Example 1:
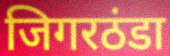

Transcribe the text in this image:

जिगरठंडा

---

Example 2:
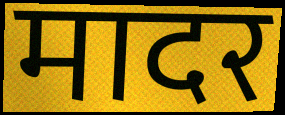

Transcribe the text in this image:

मादर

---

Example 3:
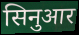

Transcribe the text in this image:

सिनुआर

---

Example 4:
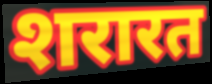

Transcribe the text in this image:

शरारत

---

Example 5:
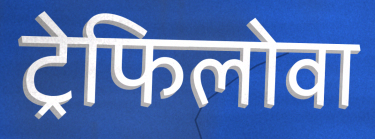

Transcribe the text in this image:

ट्रेफिलोवा